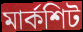
মার্কশিট